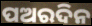
ପଅରଦିନ